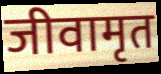
जीवामृत